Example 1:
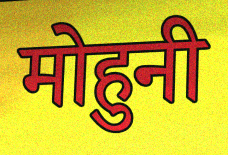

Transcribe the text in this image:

मोहुनी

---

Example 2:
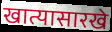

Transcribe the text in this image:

खात्यासारखे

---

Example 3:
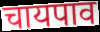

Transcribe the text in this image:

चायपाव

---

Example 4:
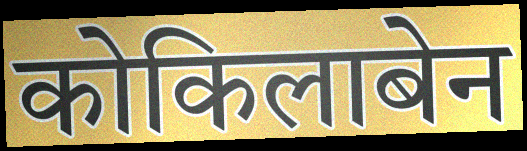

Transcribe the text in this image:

कोकिलाबेन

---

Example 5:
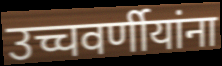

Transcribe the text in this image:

उच्चवर्णीयांना